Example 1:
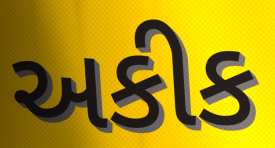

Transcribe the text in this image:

અકીક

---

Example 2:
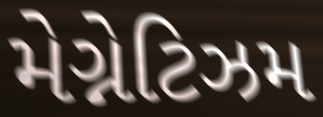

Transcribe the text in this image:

મેગ્નેટિઝમ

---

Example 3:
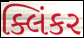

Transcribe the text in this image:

ક્લિંકર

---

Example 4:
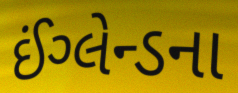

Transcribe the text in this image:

ઈંગ્લેન્ડના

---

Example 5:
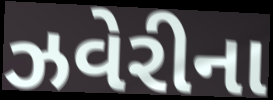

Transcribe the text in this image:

ઝવેરીના